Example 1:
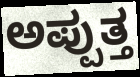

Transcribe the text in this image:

ಅಪ್ಪುತ್ತ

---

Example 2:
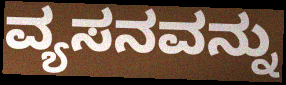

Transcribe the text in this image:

ವ್ಯಸನವನ್ನು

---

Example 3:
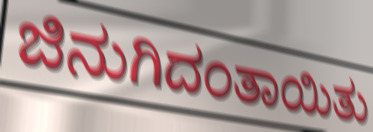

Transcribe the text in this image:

ಜಿನುಗಿದಂತಾಯಿತು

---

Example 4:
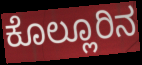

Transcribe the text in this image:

ಕೊಲ್ಲೂರಿನ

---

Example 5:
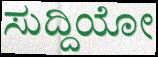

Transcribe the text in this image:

ಸುದ್ದಿಯೋ